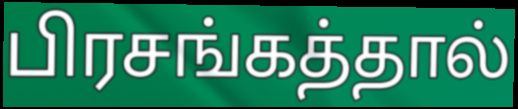
பிரசங்கத்தால்